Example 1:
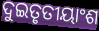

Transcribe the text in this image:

ଦୁଇତୃତୀୟାଂଶ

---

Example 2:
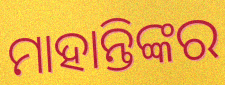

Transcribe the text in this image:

ମାହାନ୍ତିଙ୍କର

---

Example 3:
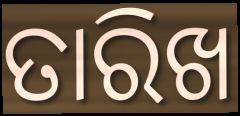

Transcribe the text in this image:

ତାରିଖ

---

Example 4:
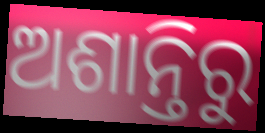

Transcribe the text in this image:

ଅଶାନ୍ତିରୁ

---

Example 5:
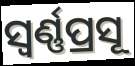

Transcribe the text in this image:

ସ୍ବର୍ଣ୍ଣପ୍ରସୂ